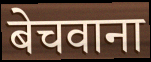
बेचवाना